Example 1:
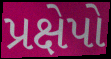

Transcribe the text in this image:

પ્રક્ષેપો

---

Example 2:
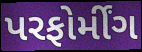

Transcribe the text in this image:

પરફોર્મીંગ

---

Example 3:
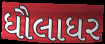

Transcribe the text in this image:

ધૌલાધર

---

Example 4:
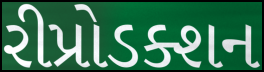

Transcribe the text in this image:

રીપ્રોડક્શન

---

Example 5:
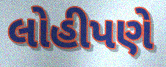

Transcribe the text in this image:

લોહીપણે